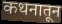
कथनातून